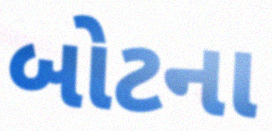
બોટના